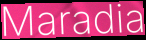
Maradia